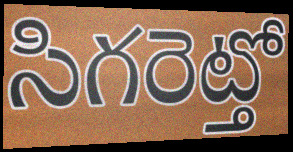
సిగరెట్తో